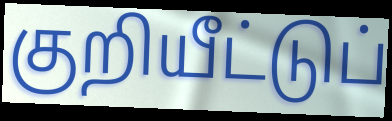
குறியீட்டுப்